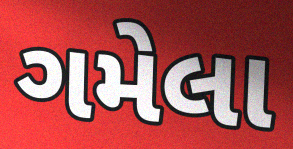
ગમેલા